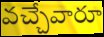
వచ్చేవారూ